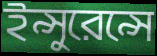
ইন্সুরেন্সে